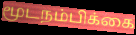
மூடநம்பிக்கை